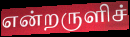
என்றருளிச்